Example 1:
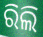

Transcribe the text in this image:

ରିଲି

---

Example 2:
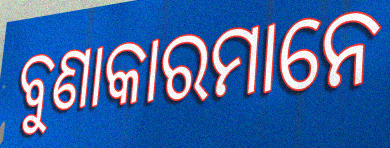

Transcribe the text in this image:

ବୁଣାକାରମାନେ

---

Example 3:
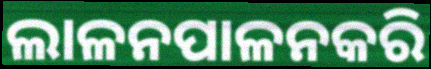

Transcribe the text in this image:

ଲାଳନପାଳନକରି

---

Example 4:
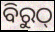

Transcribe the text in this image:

ବିରୁଠ୍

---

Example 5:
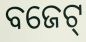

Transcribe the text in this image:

ବଜେଟ୍